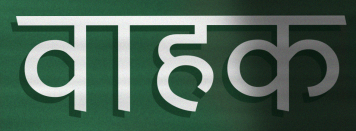
वाहक